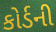
કોર્ડની